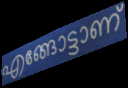
എങ്ങോട്ടാണ്